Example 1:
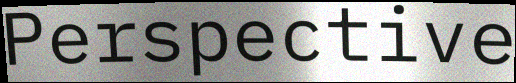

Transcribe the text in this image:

Perspective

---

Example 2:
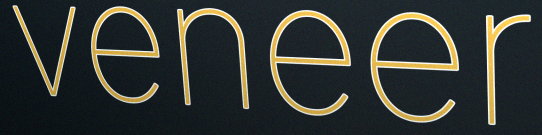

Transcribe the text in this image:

veneer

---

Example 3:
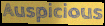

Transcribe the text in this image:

Auspicious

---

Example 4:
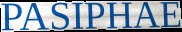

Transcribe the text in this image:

PASIPHAE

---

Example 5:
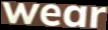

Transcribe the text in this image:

wear